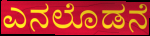
ಎನಲೊಡನೆ